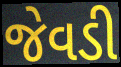
જેવડી